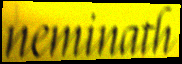
neminath